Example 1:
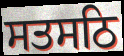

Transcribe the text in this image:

ਸਤਸਠਿ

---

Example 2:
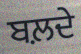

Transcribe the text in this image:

ਬਲ਼ਦੇ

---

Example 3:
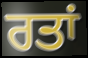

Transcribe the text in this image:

ਰਤਾਂ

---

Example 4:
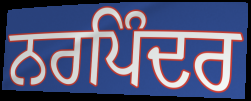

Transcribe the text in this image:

ਨਰਪਿੰਦਰ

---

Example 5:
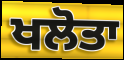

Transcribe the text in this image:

ਖਲੋਤਾ